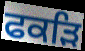
ਫਕੜਿ